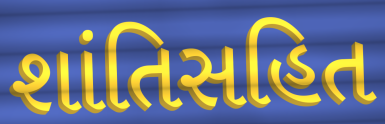
શાંતિસહિત